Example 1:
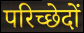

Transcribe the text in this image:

परिच्छेदों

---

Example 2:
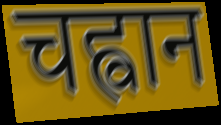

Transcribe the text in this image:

चह्वान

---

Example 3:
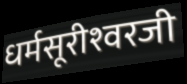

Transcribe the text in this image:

धर्मसूरीश्वरजी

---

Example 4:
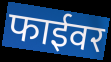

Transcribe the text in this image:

फाईवर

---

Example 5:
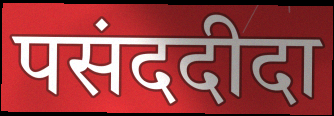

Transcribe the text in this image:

पसंददीदा